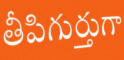
తీపిగుర్తుగా